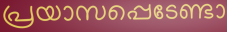
പ്രയാസപ്പെടേണ്ടാ